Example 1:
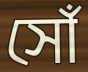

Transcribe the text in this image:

সোঁ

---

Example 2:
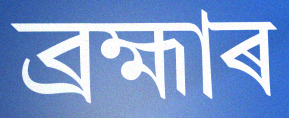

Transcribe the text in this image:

ব্ৰহ্মাৰ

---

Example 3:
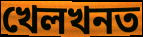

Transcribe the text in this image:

খেলখনত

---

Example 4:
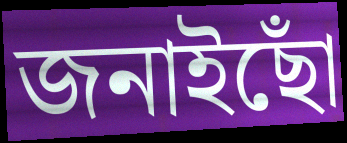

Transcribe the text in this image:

জনাইছোঁ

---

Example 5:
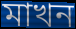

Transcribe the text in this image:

মাখন